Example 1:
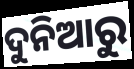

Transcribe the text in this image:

ଦୁନିଆରୁ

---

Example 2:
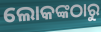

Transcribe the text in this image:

ଲୋକଙ୍କଠାରୁ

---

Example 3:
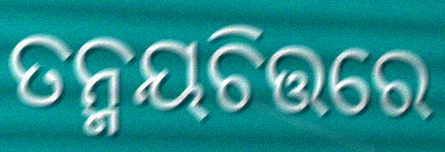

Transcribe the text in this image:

ତନ୍ମୟଚିତ୍ତରେ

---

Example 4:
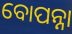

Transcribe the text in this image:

ବୋପନ୍ନା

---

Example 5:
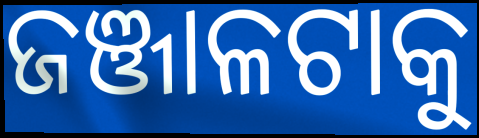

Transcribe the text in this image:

ଜଞ୍ଜାଳଟାକୁ